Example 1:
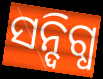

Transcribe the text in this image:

ସନ୍ଦିଗ୍ଧ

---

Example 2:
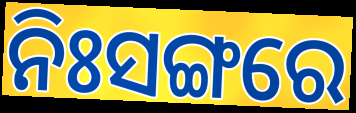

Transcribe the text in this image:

ନିଃସଙ୍ଗରେ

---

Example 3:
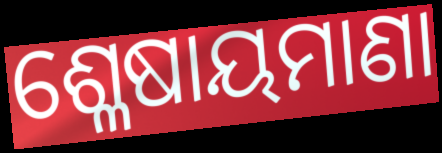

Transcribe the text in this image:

ଶ୍ଳେଷାୟମାଣା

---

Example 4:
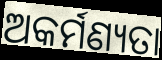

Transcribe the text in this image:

ଅକର୍ମଣ୍ୟତା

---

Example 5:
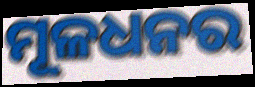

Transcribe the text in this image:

ମୂଳଧନର